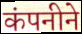
कंपनीने